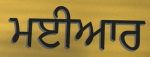
ਮਈਆਰ